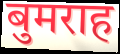
बुमराह